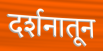
दर्शनातून